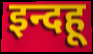
इन्दहू